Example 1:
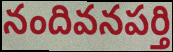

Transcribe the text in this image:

నందివనపర్తి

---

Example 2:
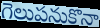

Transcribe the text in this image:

గెలుపనుకొనా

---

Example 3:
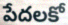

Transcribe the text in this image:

పేదలకో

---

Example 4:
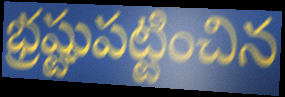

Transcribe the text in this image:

భ్రష్టుపట్టించిన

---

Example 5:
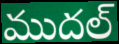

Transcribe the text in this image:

ముదల్